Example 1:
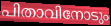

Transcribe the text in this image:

പിതാവിനോടും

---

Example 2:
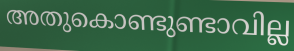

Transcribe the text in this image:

അതുകൊണ്ടുണ്ടാവില്ല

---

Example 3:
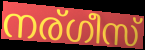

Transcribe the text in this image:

നര്ഗീസ്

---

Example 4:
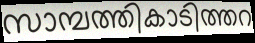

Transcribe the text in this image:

സാമ്പത്തികാടിത്തറ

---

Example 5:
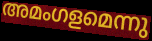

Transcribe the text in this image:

അമംഗളമെന്നു